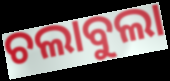
ଚଲାବୁଲା